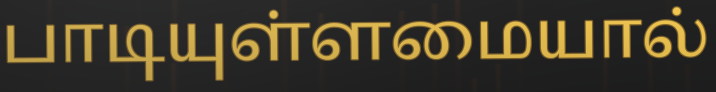
பாடியுள்ளமையால்